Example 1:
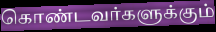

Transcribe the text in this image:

கொண்டவர்களுக்கும்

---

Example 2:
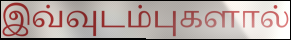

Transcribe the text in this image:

இவ்வுடம்புகளால்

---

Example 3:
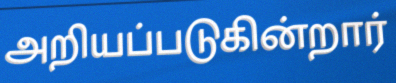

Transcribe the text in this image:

அறியப்படுகின்றார்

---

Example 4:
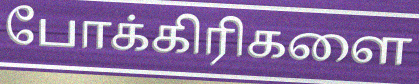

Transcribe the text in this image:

போக்கிரிகளை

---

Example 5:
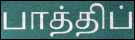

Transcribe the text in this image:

பாத்திப்